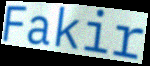
Fakir